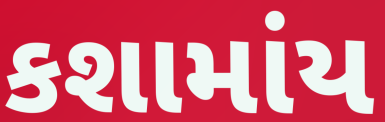
કશામાંય